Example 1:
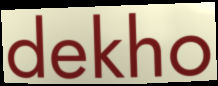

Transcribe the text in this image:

dekho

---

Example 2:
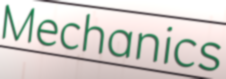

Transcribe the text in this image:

Mechanics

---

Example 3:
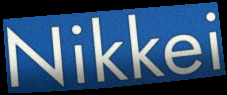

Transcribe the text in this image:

Nikkei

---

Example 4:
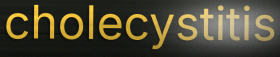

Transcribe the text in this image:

cholecystitis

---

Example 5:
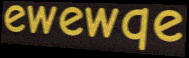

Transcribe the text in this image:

ewewqe